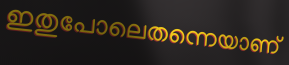
ഇതുപോലെതന്നെയാണ്